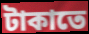
টাকাতে